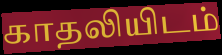
காதலியிடம்